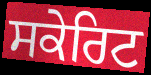
ਸਕੇਰਿਟ